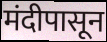
मंदीपासून